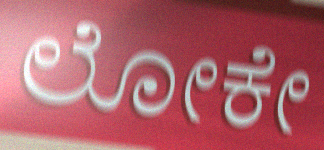
ಲೋಕೇ